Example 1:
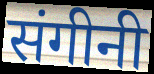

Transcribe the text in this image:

संगीनी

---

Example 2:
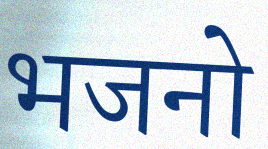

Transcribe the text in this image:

भजनो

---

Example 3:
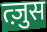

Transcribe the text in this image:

त्ज़ुस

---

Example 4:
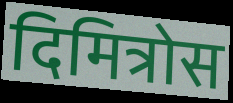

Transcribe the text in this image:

दिमित्रोस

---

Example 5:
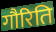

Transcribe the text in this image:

गौरिति